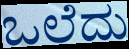
ಒಲೆದು